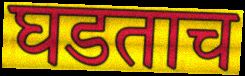
घडताच